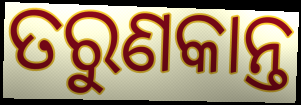
ତରୁଣକାନ୍ତ